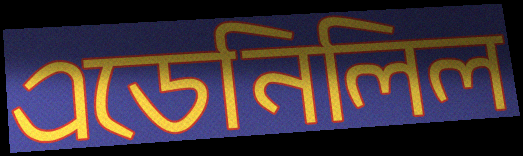
এডেনিলিল